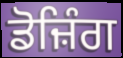
ਡੋਜ਼ਿੰਗ